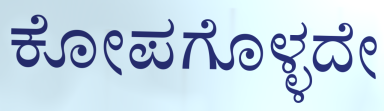
ಕೋಪಗೊಳ್ಳದೇ